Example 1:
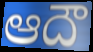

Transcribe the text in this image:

ఆదౌ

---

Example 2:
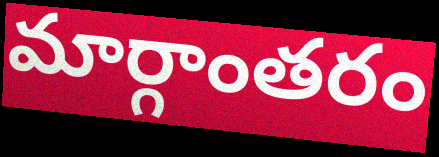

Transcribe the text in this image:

మార్గాంతరం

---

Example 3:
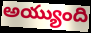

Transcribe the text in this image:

అయ్యుంది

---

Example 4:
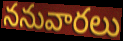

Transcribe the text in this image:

ననువారలు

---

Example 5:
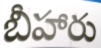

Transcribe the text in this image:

బీహారు